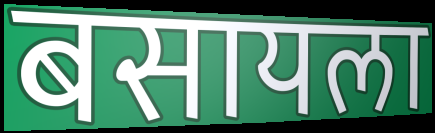
बसायला